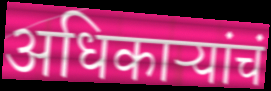
अधिकाऱ्यांचं